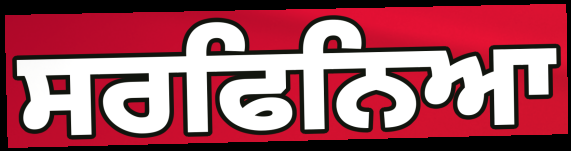
ਸਰਫਿਨਿਆ